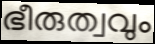
ഭീരുത്വവും